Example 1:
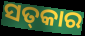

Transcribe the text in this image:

ସତ୍‌କାର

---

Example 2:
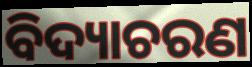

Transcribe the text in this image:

ବିଦ୍ୟାଚରଣ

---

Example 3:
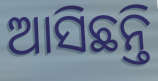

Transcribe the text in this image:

ଆସିଛନ୍ତି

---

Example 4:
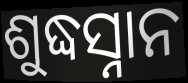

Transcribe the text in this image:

ଶୁଦ୍ଧସ୍ନାନ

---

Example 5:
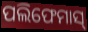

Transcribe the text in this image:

ପଲିଫେମାସ୍